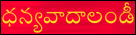
ధన్యవాదాలండీ